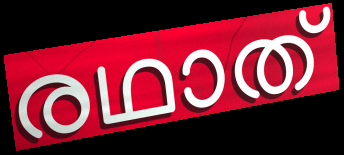
രഥാത്